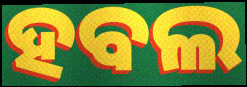
ହବଲ